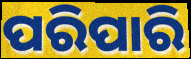
ପରିପାରି